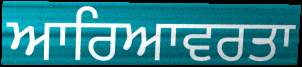
ਆਰਿਆਵਰਤਾ